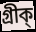
গ্রীক্